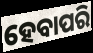
ହେବାପରି